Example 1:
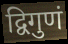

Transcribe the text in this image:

द्विगुणं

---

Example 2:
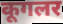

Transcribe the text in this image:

कूगलर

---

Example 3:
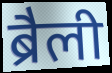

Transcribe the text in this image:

ब्रैली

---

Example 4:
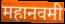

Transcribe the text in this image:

महानवमी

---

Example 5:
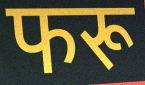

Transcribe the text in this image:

फरू